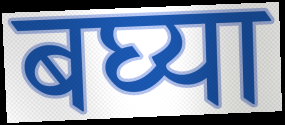
बघ्या